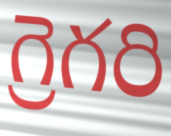
గ్రెగరి